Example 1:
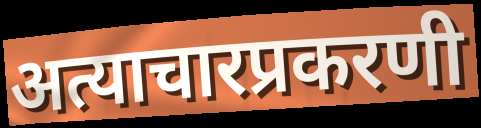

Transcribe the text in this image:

अत्याचारप्रकरणी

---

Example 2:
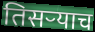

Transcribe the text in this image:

तिसऱ्याच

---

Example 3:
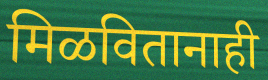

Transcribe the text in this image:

मिळवितानाही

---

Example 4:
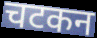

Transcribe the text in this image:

चटकन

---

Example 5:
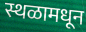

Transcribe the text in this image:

स्थळामधून